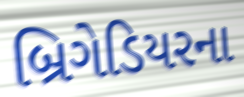
બ્રિગેડિયરના